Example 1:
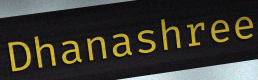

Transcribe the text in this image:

Dhanashree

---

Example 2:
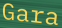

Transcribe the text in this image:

Gara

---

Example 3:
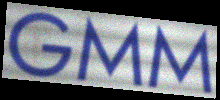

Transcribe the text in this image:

GMM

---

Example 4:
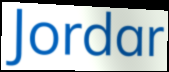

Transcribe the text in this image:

Jordar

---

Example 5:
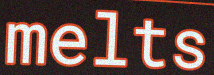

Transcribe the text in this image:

melts